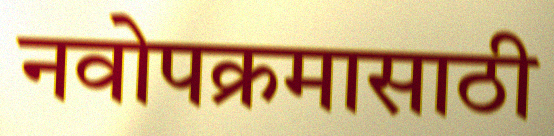
नवोपक्रमासाठी